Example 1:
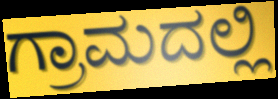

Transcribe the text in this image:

ಗ್ರಾಮದಲ್ಲಿ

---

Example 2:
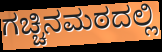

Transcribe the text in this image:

ಗಚ್ಚಿನಮಠದಲ್ಲಿ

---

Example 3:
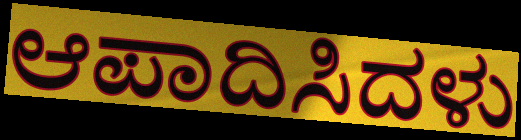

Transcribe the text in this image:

ಆಪಾದಿಸಿದಳು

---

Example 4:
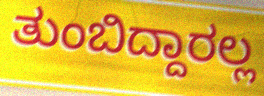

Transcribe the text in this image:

ತುಂಬಿದ್ದಾರಲ್ಲ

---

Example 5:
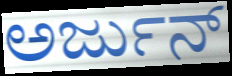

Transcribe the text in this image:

ಅರ್ಜುನ್